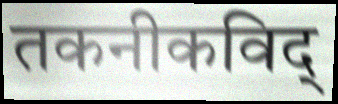
तकनीकविद्